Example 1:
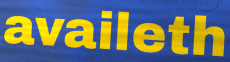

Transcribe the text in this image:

availeth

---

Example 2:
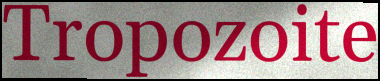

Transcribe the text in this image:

Tropozoite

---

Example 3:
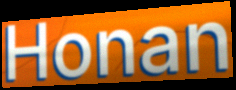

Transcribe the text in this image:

Honan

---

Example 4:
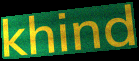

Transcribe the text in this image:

khind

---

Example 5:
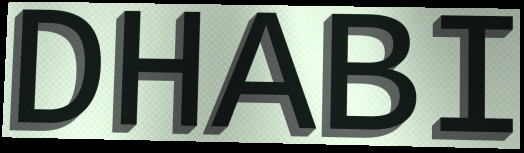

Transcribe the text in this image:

DHABI